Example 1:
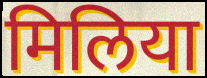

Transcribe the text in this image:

मिलिया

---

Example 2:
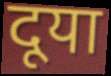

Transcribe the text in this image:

दूया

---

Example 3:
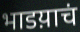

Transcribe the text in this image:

भाडय़ाचं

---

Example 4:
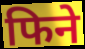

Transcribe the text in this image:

फिने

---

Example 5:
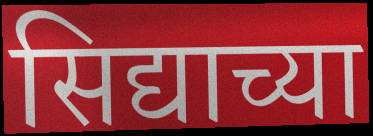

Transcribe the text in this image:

सिद्याच्या